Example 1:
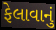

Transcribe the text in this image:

ફેલાવાનું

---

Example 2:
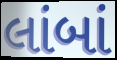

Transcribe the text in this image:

લાંબાં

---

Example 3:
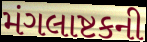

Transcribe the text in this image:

મંગલાષ્ટકની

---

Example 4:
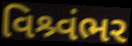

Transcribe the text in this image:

વિશ્ર્વંભર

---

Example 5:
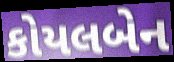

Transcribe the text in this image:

કોયલબેન